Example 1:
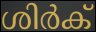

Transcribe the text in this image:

ശിർക്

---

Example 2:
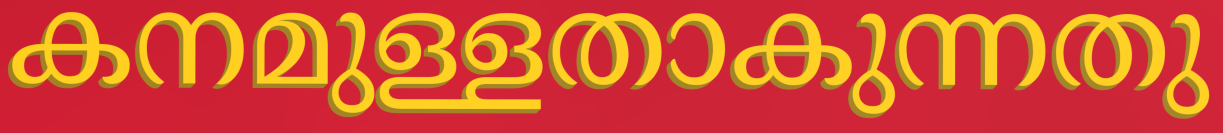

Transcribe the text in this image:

കനമുള്ളതാകുന്നതു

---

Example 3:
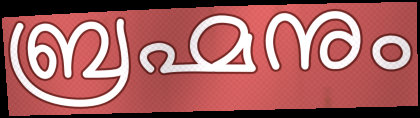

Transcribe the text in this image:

ബ്രഹ്മനും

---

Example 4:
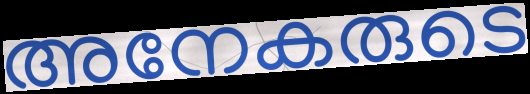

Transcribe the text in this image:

അനേകരുടെ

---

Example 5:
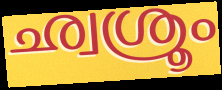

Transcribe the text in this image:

ഛ്വശ്രൂം